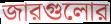
জারগুলোর